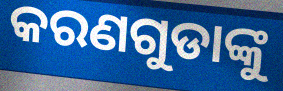
କରଣଗୁଡାଙ୍କୁ